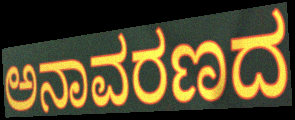
ಅನಾವರಣದ